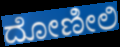
ದೋಣೀಲಿ